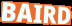
BAIRD